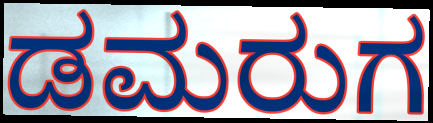
ಡಮರುಗ